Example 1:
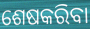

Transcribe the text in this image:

ଶେଷକରିବା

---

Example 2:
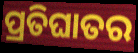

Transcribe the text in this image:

ପ୍ରତିଘାତର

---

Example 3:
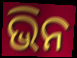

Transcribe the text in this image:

ଭିନ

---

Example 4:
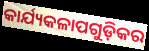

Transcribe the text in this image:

କାର୍ଯ୍ୟକଳାପଗୁଡ଼ିକର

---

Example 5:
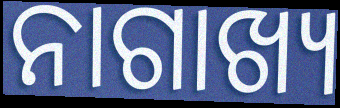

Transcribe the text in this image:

ନାଗାଖ୍ୟ